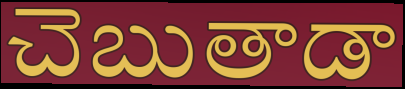
చెబుతాడా